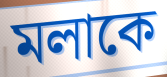
মলাকে